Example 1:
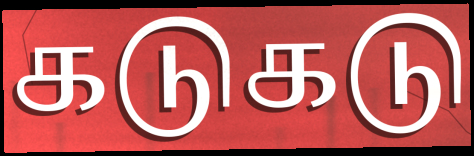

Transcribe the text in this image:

கடுகடு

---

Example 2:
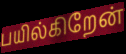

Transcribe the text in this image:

பயில்கிறேன்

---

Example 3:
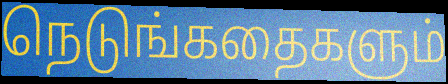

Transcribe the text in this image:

நெடுங்கதைகளும்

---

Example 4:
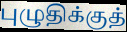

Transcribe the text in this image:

புழுதிக்குத்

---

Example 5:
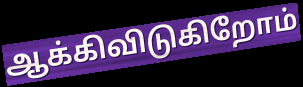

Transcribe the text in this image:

ஆக்கிவிடுகிறோம்